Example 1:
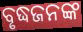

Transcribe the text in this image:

ବୃଦ୍ଧଜନଙ୍କ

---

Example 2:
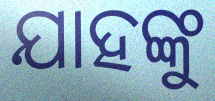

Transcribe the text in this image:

ଯାହଙ୍କୁ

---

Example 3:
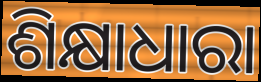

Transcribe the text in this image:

ଶିକ୍ଷାଧାରା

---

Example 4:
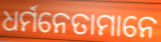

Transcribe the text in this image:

ଧର୍ମନେତାମାନେ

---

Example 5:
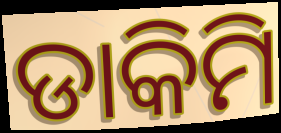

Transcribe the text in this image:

ଡାକିମି